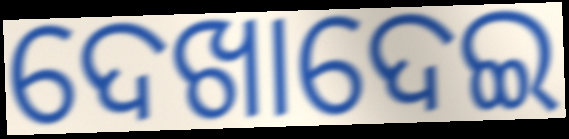
ଦେଖାଦେଇ